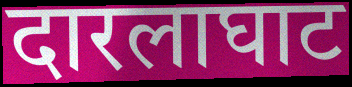
दारलाघाट